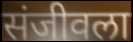
संजीवला